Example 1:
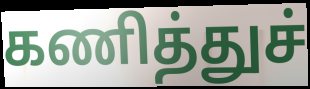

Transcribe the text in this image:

கணித்துச்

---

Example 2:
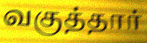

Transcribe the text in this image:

வகுத்தார்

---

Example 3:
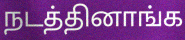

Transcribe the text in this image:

நடத்தினாங்க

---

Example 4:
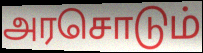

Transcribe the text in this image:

அரசொடும்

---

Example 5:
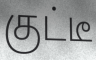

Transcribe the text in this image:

குட்டீ